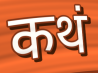
कथं